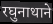
रघुनाथाने